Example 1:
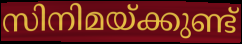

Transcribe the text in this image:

സിനിമയ്ക്കുണ്ട്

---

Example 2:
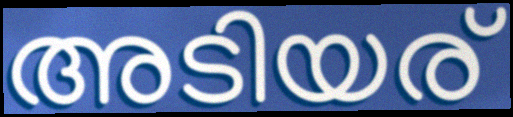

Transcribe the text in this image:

അടിയര്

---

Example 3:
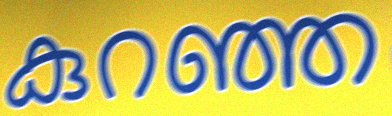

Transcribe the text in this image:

കുറഞ്ഞ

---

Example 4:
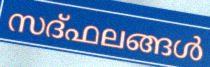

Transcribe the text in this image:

സദ്ഫലങ്ങൾ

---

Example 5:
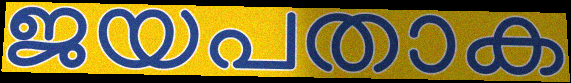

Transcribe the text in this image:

ജയപതാക